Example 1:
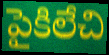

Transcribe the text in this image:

పైకిలేచి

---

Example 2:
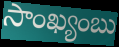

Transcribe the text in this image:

సాంఖ్యంబు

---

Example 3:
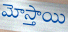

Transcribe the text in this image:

మోస్తాయి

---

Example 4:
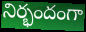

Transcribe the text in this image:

నిర్భందంగా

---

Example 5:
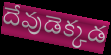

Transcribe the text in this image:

దేవుడెక్కడ